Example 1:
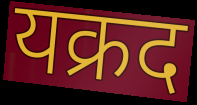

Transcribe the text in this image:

यक्रद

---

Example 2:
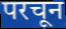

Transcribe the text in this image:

परचून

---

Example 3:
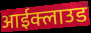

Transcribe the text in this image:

आईक्लाउड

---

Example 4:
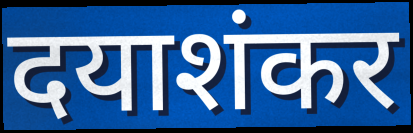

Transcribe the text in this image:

दयाशंकर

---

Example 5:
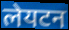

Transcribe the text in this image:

लेयटन